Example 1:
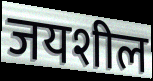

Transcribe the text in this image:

जयशील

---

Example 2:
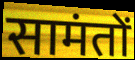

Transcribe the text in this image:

सामंतों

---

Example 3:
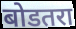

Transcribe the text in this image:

बोडतरा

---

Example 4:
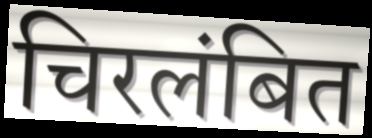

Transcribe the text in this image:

चिरलंबित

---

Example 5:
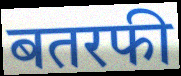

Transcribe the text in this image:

बतरफी